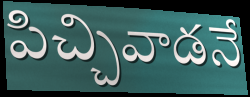
పిచ్చివాడనే